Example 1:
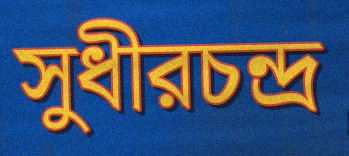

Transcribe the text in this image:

সুধীরচন্দ্র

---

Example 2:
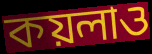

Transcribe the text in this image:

কয়লাও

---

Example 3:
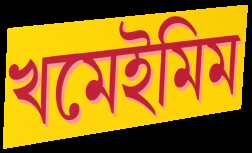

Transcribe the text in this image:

খমেইমিম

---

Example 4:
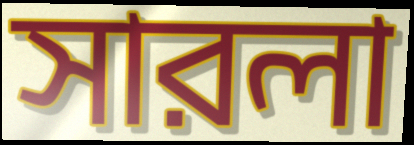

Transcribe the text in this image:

সারলা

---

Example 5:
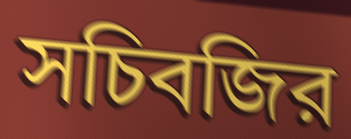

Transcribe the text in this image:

সচিবজির